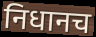
निधानच